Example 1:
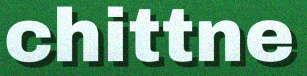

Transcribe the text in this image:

chittne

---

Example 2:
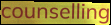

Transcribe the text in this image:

counselling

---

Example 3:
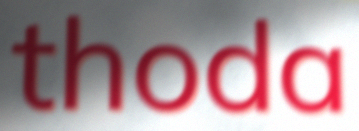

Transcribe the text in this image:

thoda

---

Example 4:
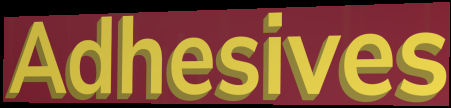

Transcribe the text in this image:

Adhesives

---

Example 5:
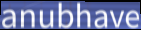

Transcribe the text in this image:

anubhave